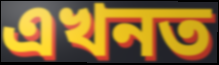
এখনত